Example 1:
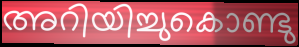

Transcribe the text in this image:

അറിയിച്ചുകൊണ്ടു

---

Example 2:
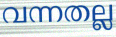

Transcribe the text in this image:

വന്നതല്ല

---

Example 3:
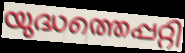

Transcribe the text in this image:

യുദ്ധത്തെപ്പറ്റി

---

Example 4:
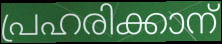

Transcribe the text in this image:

പ്രഹരിക്കാന്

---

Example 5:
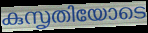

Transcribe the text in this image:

കുസൃതിയോടെ